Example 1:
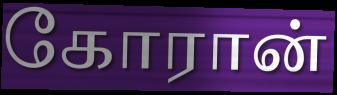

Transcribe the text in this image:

கோரான்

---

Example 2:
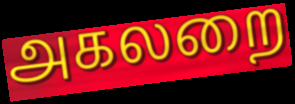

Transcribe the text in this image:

அகலறை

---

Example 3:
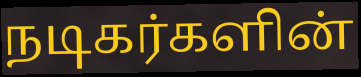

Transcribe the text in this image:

நடிகர்களின்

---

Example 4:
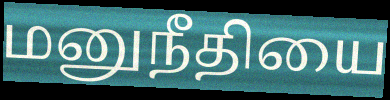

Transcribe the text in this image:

மனுநீதியை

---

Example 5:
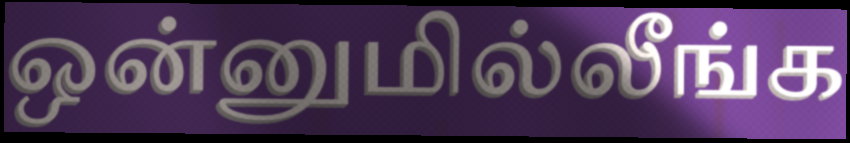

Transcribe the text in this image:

ஒன்னுமில்லீங்க